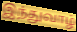
இந்துவாழ்